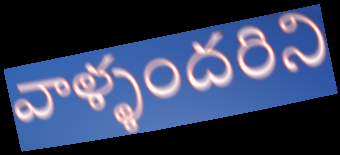
వాళ్ళందరిని